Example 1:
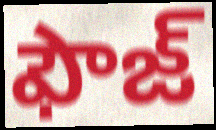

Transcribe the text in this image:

ఫౌజ్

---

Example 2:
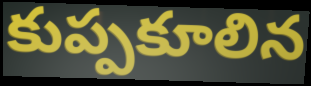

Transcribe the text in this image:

కుప్పకూలిన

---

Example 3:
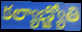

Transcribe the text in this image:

కల్యాణ్జ్యోతి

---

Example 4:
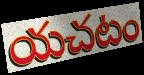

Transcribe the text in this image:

యచటం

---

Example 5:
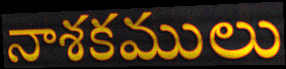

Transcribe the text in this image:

నాశకములు